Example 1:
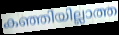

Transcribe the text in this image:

കഞ്ഞിയില്ലാത്ത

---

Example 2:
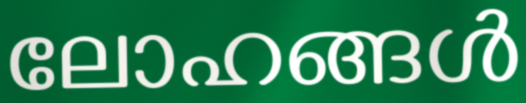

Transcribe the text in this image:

ലോഹങ്ങൾ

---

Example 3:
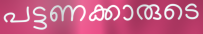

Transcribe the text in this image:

പട്ടണക്കാരുടെ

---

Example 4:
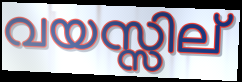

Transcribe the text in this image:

വയസ്സില്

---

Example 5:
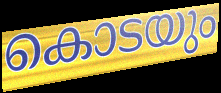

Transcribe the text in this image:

കൊടയും